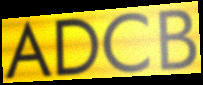
ADCB